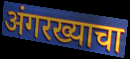
अंगरख्याचा